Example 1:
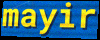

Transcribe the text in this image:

mayir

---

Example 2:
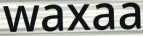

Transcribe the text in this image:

waxaa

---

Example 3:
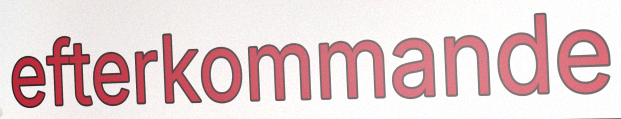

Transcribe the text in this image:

efterkommande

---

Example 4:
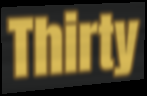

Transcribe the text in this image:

Thirty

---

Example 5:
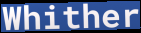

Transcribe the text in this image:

Whither